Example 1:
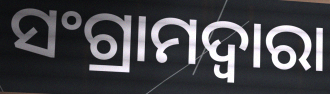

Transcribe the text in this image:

ସଂଗ୍ରାମଦ୍ଵାରା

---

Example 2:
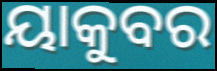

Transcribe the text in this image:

ୟାକୁବର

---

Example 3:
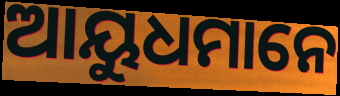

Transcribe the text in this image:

ଆୟୁଧମାନେ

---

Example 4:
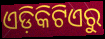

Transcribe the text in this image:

ଏଡ଼ିକିଟିଏରୁ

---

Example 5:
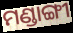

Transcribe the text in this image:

ମଣ୍ଡାଙ୍ଗୀ